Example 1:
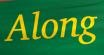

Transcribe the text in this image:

Along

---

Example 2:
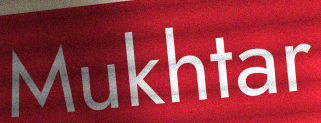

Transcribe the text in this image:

Mukhtar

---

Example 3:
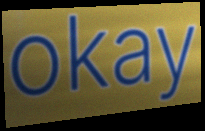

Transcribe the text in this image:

okay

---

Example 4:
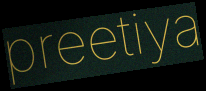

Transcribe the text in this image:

preetiya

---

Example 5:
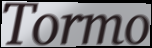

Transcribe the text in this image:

Tormo